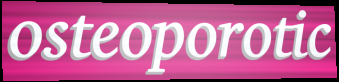
osteoporotic